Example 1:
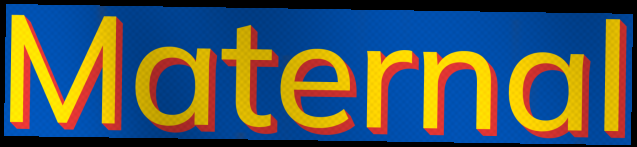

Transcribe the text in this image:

Maternal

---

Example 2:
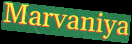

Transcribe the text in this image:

Marvaniya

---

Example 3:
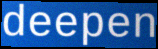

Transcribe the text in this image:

deepen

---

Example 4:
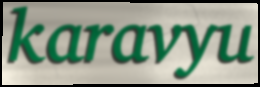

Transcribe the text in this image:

karavyu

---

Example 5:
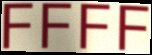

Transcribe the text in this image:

FFFF